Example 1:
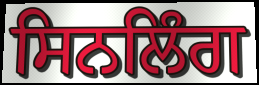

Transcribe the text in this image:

ਸਿਨਲਿੰਗ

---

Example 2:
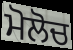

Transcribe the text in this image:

ਮੋਲੋਚ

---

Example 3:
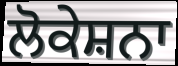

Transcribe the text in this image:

ਲੋਕੇਸ਼ਨਾ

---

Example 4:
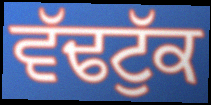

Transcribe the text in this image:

ਵੱਢਟੁੱਕ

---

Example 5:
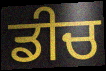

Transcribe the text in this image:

ਡੀਚ